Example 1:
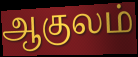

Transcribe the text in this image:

ஆகுலம்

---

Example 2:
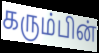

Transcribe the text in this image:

கரும்பின்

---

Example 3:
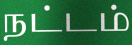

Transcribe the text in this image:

நட்டம்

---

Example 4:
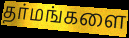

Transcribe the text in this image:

தர்மங்களை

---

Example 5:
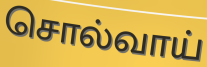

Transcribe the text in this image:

சொல்வாய்